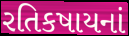
રતિકષાયનાં